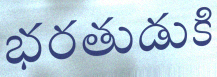
భరతుడుకి